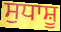
ਸੁਧਾਸ਼ੂ